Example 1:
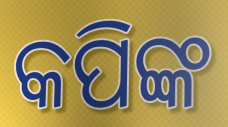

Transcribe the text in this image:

କପିଙ୍କ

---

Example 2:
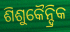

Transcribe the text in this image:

ଶିଶୁକୈନ୍ଦ୍ରିକ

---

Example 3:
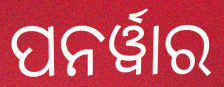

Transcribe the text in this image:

ପନର୍ୱାର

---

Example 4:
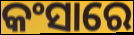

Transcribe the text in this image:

କଂସାରେ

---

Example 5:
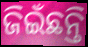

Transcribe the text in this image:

ଜିଇଁଛନ୍ତି